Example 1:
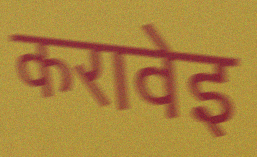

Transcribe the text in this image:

करावेइ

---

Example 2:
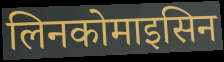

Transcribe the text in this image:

लिनकोमाइसिन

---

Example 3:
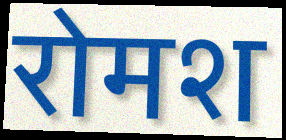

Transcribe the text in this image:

रोमश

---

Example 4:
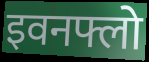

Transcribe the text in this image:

इवनफ्लो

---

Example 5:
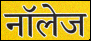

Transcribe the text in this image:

नॉलेज